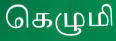
கெழுமி